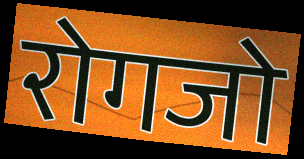
रोगजो